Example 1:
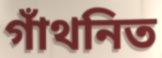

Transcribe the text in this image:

গাঁথনিত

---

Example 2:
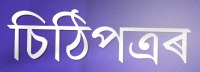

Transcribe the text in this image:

চিঠিপত্ৰৰ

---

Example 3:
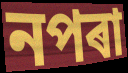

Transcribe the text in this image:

নপৰা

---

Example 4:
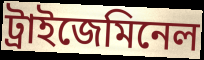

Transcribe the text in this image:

ট্ৰাইজেমিনেল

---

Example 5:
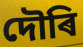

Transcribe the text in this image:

দৌৰি